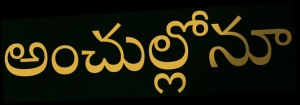
అంచుల్లోనూ